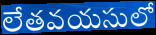
లేతవయసులో